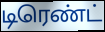
டிரெண்ட்